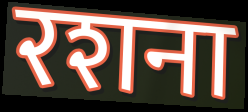
रशना